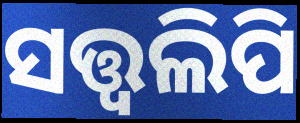
ସତ୍ତ୍ୱଲିପି